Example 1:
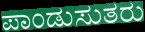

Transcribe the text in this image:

ಪಾಂಡುಸುತರು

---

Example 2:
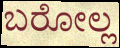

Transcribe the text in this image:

ಬರೋಲ್ಲ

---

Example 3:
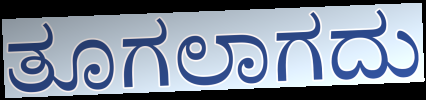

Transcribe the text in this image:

ತೂಗಲಾಗದು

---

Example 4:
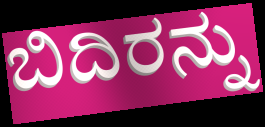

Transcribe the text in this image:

ಬಿದಿರನ್ನು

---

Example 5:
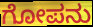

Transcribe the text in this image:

ಗೋಪನು